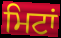
ਮਿਟਾਂ